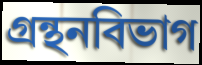
গ্রন্থনবিভাগ